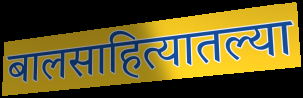
बालसाहित्यातल्या